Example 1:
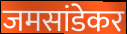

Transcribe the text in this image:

जमसांडेकर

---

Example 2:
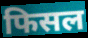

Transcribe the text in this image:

फिसल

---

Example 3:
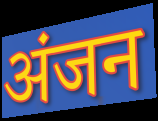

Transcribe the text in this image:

अंजन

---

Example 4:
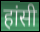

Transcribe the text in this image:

हांसी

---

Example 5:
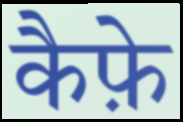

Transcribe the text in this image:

कैफ़े